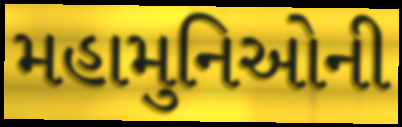
મહામુનિઓની